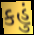
કહું